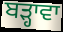
ਬੜ੍ਹਾਵਾ